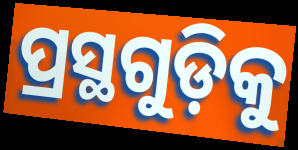
ପ୍ରସ୍ଥଗୁଡ଼ିକୁ